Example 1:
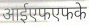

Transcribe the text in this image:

आईएफएफके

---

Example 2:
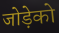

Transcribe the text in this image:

जोड़ेको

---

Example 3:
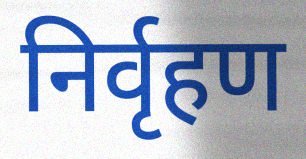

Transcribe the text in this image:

निर्वृहण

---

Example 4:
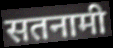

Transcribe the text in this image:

सतनामी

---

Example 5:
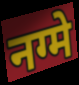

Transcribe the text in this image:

नग्मे